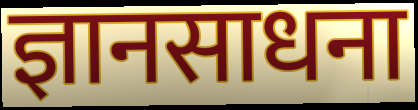
ज्ञानसाधना